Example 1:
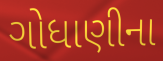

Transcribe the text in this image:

ગોધાણીના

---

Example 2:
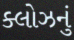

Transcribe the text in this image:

ક્લોઝનું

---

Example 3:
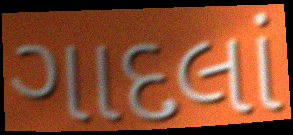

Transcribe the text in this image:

ગાદલાં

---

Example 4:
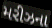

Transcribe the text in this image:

મરીઝના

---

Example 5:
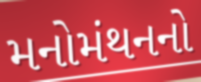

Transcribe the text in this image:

મનોમંથનનો